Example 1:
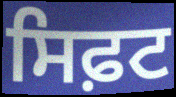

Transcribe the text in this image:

ਸਿਫ਼ਟ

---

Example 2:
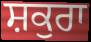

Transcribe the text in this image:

ਸ਼ਕੁਰਾ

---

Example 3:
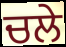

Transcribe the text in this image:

ਚਲੇ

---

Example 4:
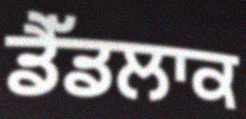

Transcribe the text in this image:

ਡੈੱਡਲਾਕ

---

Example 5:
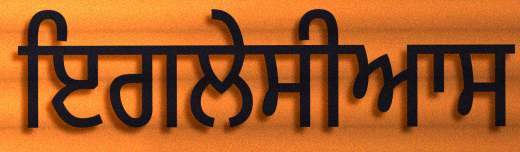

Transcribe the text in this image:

ਇਗਲੇਸੀਆਸ